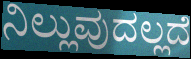
ನಿಲ್ಲುವುದಲ್ಲದೆ